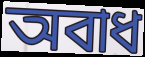
অবাধ